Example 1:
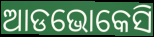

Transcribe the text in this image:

ଆଡଭୋକେସି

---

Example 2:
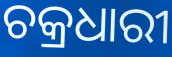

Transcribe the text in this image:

ଚକ୍ରଧାରୀ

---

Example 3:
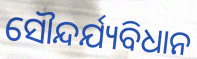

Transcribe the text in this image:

ସୌନ୍ଦର୍ଯ୍ୟବିଧାନ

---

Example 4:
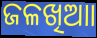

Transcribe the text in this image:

ଜଳଖିଆା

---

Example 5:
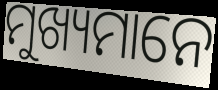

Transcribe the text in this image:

ମୁଖ୍ୟମାନେ